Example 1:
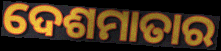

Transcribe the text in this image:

ଦେଶମାତାର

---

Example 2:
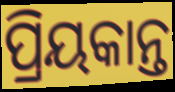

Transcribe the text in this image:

ପ୍ରିୟକାନ୍ତ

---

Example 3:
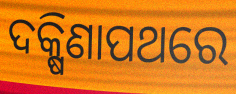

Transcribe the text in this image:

ଦକ୍ଷିଣାପଥରେ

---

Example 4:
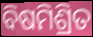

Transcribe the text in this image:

ବିଷମିଶ୍ରିତ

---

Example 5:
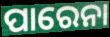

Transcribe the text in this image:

ପାରେନା